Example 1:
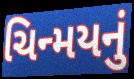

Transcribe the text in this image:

ચિન્મયનું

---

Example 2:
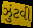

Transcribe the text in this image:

ઝુંટવી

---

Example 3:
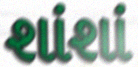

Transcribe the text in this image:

શાંશાં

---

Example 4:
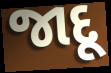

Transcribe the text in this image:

જાદૂ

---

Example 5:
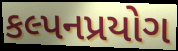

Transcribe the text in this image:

કલ્પનપ્રયોગ